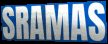
SRAMAS